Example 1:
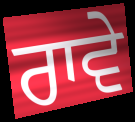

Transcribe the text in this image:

ਰਾਵੇ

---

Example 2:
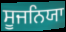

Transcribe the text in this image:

ਸੂਜਨਿਯਾ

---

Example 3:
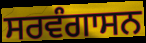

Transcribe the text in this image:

ਸਰਵੰਗਾਸਨ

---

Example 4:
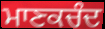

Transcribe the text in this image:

ਮਾਣਕਚੰਦ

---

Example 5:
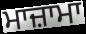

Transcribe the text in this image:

ਮਾਜ਼ਾਮਾ